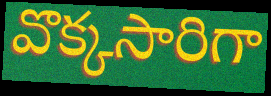
వొక్కసారిగా